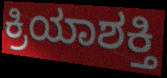
ಕ್ರಿಯಾಶಕ್ತಿ